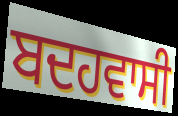
ਬਦਹਵਾਸੀ